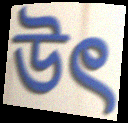
উৎ